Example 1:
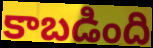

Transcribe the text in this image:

కాబడింది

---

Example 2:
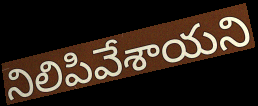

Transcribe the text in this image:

నిలిపివేశాయని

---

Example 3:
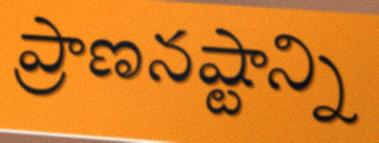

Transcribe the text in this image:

ప్రాణనష్టాన్ని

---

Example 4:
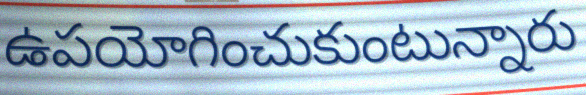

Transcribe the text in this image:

ఉపయోగించుకుంటున్నారు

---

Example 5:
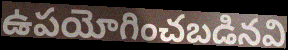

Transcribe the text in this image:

ఉపయోగించబడినవి